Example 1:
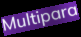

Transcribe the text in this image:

Multipara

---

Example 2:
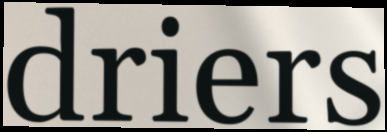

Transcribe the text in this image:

driers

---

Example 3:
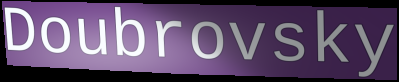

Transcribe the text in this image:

Doubrovsky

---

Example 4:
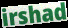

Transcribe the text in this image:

irshad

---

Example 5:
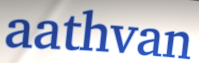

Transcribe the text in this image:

aathvan